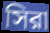
সিরা